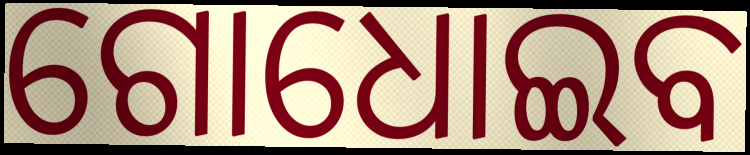
ଗୋଧୋଇବ